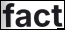
fact